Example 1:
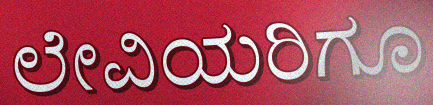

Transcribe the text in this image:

ಲೇವಿಯರಿಗೂ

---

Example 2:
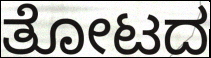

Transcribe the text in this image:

ತೋಟದ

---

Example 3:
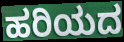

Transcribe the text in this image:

ಹರಿಯದ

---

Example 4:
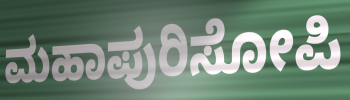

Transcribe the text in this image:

ಮಹಾಪುರಿಸೋಪಿ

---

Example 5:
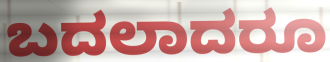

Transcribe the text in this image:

ಬದಲಾದರೂ